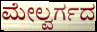
ಮೇಲ್ವರ್ಗದ